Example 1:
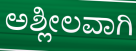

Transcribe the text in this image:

ಅಶ್ಲೀಲವಾಗಿ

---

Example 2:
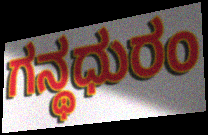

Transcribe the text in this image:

ಗನ್ಥಧುರಂ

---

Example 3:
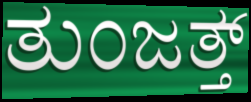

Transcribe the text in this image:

ತುಂಜತ್ತ್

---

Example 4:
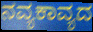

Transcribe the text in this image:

ನವ್ಯಕಾವ್ಯದ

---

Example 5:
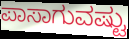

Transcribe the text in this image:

ಪಾಸಾಗುವಷ್ಟು